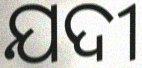
ଯଦୀ